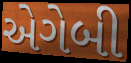
એગેબી